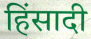
हिंसादी